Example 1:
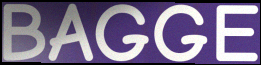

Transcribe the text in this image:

BAGGE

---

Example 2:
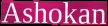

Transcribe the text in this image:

Ashokan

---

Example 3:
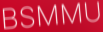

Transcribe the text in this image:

BSMMU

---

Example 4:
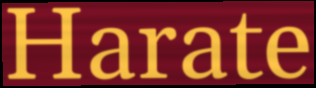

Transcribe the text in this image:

Harate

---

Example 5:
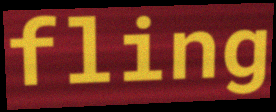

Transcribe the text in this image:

fling